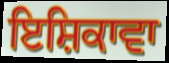
ਇਸ਼ਿਕਾਵਾ